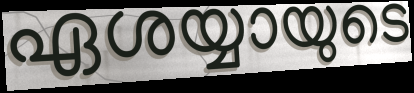
ഏശയ്യായുടെ